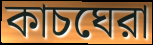
কাচঘেরা